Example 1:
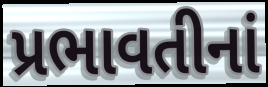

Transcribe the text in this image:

પ્રભાવતીનાં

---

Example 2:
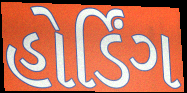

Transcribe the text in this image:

હોર્ડિંગ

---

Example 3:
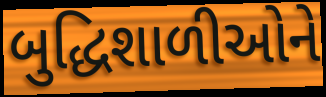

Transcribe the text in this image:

બુદ્ધિશાળીઓને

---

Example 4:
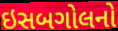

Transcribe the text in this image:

ઇસબગોલનો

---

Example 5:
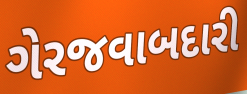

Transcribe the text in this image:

ગેરજવાબદારી